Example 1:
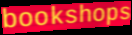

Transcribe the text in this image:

bookshops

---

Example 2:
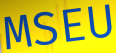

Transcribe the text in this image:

MSEU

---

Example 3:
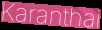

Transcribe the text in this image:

Karanthai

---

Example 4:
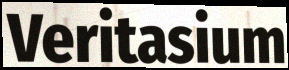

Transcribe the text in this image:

Veritasium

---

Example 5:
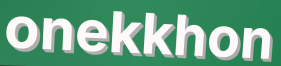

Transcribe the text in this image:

onekkhon